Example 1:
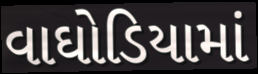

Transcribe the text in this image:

વાઘોડિયામાં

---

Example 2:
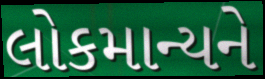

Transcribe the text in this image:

લોકમાન્યને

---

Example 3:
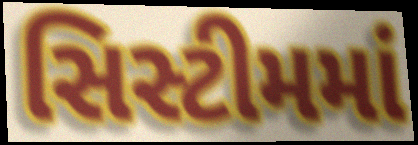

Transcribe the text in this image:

સિસ્ટીમમાં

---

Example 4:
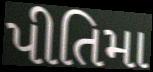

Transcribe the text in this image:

પીતિમા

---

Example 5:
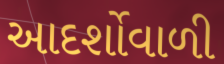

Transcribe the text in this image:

આદર્શોવાળી